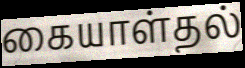
கையாள்தல்